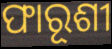
ଫାରୂଶୀ